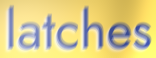
latches